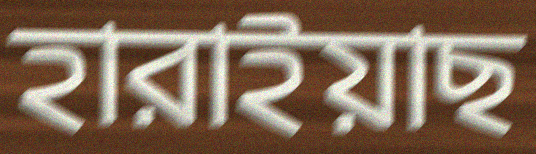
হারাইয়াছ